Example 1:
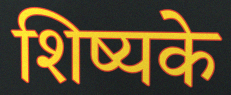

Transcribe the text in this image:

शिष्यके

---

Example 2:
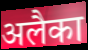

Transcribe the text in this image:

अलैका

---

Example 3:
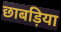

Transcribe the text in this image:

छाबड़िया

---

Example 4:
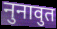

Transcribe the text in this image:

नुनावुत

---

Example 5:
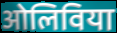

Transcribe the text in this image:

ओलिविया